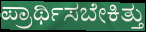
ಪ್ರಾರ್ಥಿಸಬೇಕಿತ್ತು